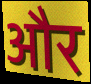
और